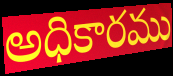
అధికారము